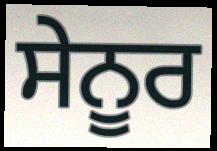
ਸੇਨੂਰ